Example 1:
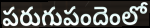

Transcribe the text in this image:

పరుగుపందెంలో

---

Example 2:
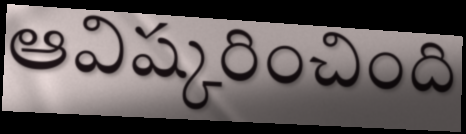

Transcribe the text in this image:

ఆవిష్కరించింది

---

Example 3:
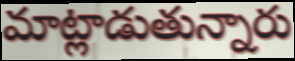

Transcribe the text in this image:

మాట్లాడుతున్నారు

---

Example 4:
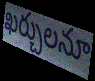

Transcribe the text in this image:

ఖర్చులనూ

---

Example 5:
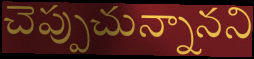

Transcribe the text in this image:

చెప్పుచున్నానని